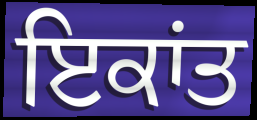
ਇਕਾਂਤ